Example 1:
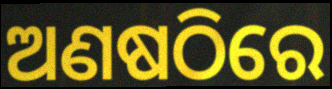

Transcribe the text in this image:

ଅଣଷଠିରେ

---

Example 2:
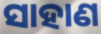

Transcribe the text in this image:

ସାହାଣ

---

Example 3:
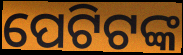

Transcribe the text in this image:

ପେଟିଟଙ୍କ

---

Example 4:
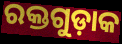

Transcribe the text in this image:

ରକ୍ତଗୁଡ଼ାକ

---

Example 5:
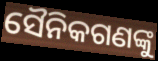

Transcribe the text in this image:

ସୈନିକଗଣଙ୍କୁ